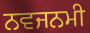
ਨਵਜਨਮੀ